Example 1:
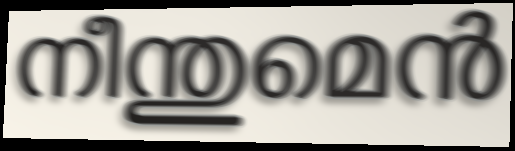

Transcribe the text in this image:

നീന്തുമെൻ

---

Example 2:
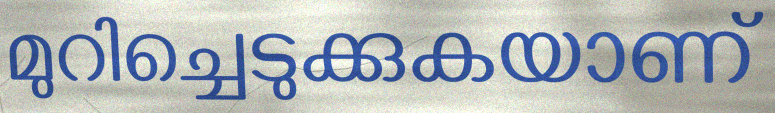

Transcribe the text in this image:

മുറിച്ചെടുക്കുകയാണ്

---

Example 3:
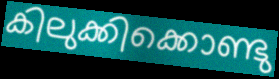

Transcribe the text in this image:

കിലുക്കിക്കൊണ്ടു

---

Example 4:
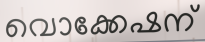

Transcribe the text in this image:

വൊക്കേഷന്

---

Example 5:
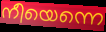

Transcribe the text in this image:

നീയെന്നെ